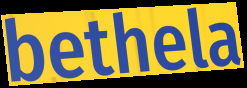
bethela